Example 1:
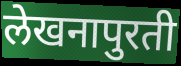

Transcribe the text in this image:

लेखनापुरती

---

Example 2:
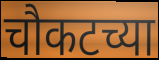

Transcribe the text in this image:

चौकटच्या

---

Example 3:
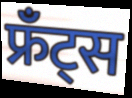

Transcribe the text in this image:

फ्रँट्स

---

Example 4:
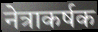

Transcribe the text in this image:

नेत्राकर्षक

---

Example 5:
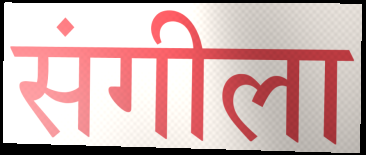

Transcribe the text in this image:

संगीला